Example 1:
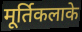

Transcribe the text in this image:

मूर्तिकलाके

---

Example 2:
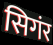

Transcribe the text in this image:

सिगंर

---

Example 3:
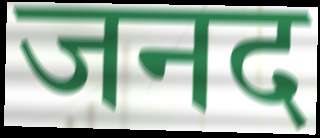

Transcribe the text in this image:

जनद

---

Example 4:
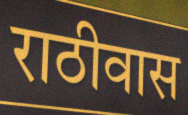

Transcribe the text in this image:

राठीवास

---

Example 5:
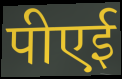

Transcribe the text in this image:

पीएई